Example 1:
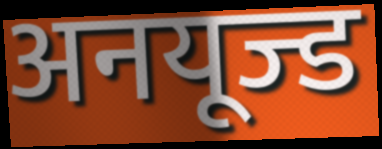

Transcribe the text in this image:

अनयूज्ड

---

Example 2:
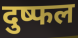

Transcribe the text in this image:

दुष्फल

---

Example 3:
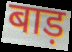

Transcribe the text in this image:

बाड़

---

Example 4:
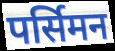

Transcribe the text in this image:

पर्सिमन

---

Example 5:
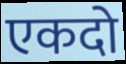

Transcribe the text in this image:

एकदो